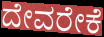
ದೇವರೇಕೆ